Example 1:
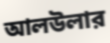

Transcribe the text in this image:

আলউলার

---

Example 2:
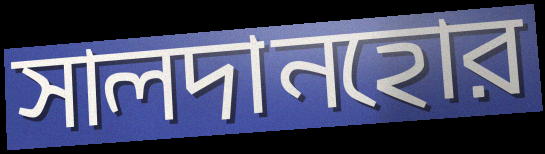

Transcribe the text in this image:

সালদানহোর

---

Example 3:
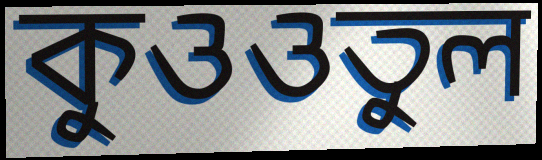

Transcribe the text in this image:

কুওওতুল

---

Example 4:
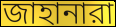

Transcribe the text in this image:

জাহানারা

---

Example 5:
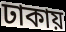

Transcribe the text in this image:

ঢাকায়